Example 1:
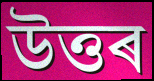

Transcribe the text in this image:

উত্তৰ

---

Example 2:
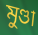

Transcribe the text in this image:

মুণ্ডা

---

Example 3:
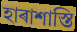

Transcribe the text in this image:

হাৰাশাস্তি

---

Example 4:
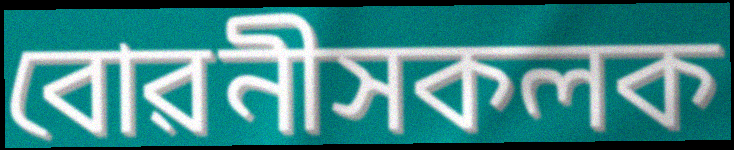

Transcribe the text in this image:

বোৱনীসকলক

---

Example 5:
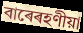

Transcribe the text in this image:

বাৰেৰহণীয়া